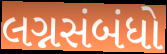
લગ્નસંબંધો